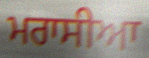
ਮਰਾਸੀਆ